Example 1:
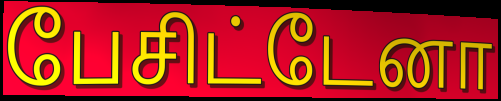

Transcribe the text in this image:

பேசிட்டேனா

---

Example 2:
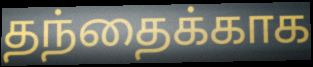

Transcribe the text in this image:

தந்தைக்காக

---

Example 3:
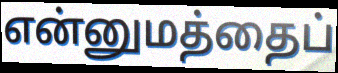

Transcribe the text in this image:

என்னுமத்தைப்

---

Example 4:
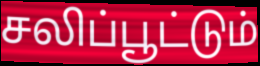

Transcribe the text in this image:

சலிப்பூட்டும்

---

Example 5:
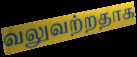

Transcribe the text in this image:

வலுவற்றதாக